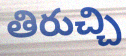
తిరుచ్చి